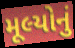
મૂલ્યોનું